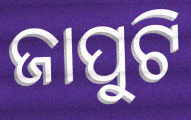
ଜାପୁଟି